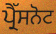
ਪ੍ਰੈੱਸਨੋਟ